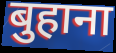
बुहाना